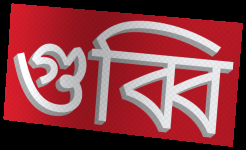
গুব্বি